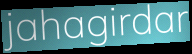
jahagirdar